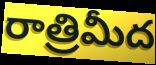
రాత్రిమీద